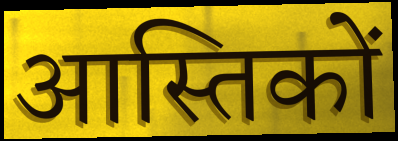
आस्तिकों